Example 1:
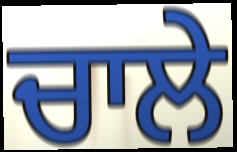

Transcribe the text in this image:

ਚਾਲੇ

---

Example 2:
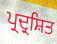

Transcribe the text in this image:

ਪ੍ਰਦ੍ਰਸ਼ਿਤ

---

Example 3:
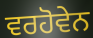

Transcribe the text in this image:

ਵਰਹੋਵੇਨ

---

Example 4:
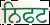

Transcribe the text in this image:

ਨਿਫਟ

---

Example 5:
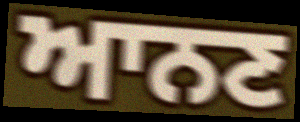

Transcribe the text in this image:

ਆਨਣ